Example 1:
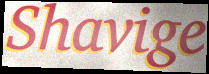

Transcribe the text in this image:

Shavige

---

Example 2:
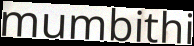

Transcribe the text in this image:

mumbithi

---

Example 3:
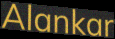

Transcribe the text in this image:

Alankar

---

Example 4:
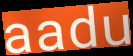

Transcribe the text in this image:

aadu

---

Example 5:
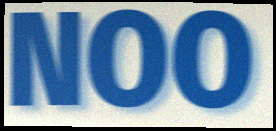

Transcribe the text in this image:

NOO